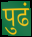
पुढं